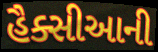
હૈક્સીઆની